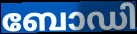
ബോഡി